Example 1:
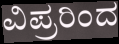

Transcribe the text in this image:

ವಿಪ್ರರಿಂದ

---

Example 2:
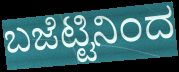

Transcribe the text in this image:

ಬಜೆಟ್ಟಿನಿಂದ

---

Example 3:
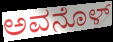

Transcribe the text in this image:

ಅವನೊಳ್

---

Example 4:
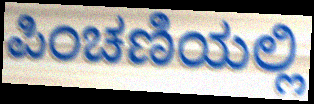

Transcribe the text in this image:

ಪಿಂಚಣಿಯಲ್ಲಿ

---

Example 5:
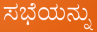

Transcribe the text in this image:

ಸಭೆಯನ್ನು